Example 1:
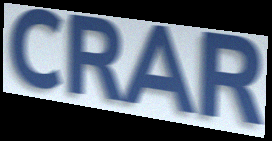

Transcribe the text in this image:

CRAR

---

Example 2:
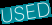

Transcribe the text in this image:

USED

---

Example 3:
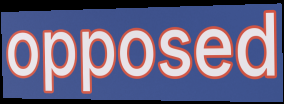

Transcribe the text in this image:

opposed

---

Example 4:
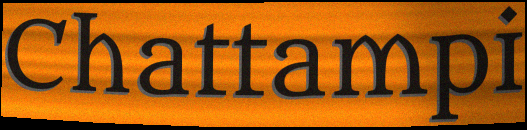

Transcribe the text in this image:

Chattampi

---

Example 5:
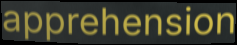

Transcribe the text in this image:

apprehension